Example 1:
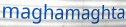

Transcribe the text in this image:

maghamaghta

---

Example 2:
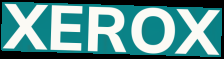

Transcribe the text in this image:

XEROX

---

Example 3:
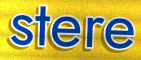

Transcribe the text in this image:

stere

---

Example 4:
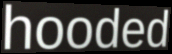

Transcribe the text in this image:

hooded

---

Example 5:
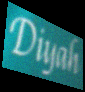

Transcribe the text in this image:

Diyah